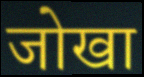
जोखा